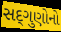
સદ્‌ગુણોનો